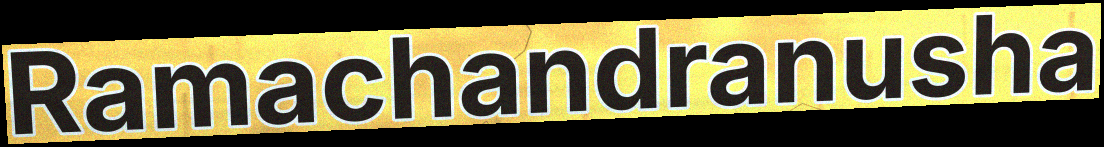
Ramachandranusha